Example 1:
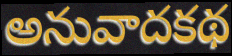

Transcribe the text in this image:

అనువాదకథ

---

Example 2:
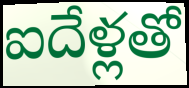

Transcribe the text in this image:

ఐదేళ్లతో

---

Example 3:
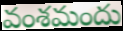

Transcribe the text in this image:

వంశమందు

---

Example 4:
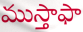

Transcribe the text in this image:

ముస్తాఫా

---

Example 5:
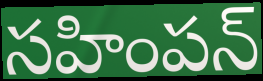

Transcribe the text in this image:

సహింపన్